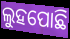
ଲୁହପୋଛି